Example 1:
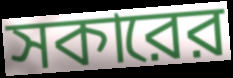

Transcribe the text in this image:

সকারের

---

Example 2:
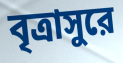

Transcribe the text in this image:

বৃত্রাসুরে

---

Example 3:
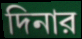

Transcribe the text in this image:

দিনার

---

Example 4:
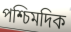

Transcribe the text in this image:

পশ্চিমদিক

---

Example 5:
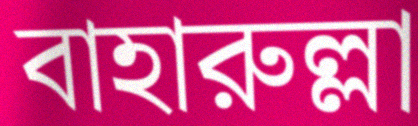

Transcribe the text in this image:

বাহারুল্লা